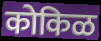
कोकिळ